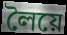
লৈয়ে